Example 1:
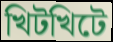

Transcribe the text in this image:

খিটখিটে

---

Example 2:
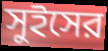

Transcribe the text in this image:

সুইসের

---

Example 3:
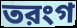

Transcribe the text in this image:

তরংগ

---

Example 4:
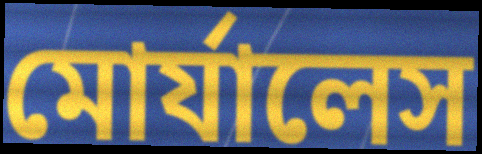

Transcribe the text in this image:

মোর্যালেস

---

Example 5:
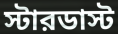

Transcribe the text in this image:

স্টারডাস্ট